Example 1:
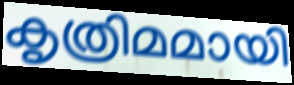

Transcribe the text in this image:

കൃത്രിമമായി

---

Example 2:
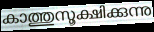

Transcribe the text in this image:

കാത്തുസൂക്ഷിക്കുന്നു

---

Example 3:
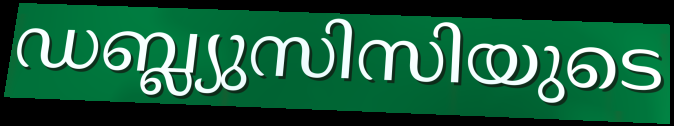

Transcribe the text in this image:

ഡബ്ല്യുസിസിയുടെ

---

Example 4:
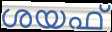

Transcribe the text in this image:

ശയഫ്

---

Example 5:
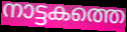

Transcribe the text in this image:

നാട്ടകത്തെ